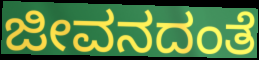
ಜೀವನದಂತೆ